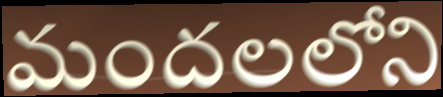
మందలలోని